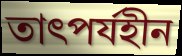
তাৎপর্যহীন